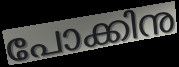
പോക്കിനു